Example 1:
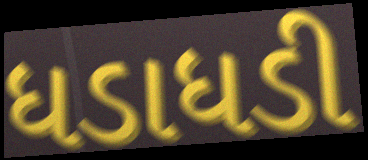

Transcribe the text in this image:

ધડાધડી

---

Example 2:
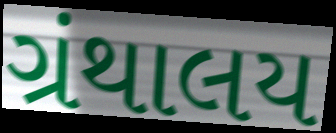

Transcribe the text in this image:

ગ્રંથાલય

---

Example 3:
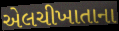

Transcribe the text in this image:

એલચીખાતાના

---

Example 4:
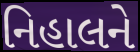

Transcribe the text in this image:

નિહાલને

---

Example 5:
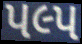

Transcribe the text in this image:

પલ્પ